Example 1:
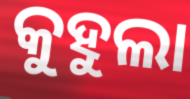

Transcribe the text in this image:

କୁହୁଲା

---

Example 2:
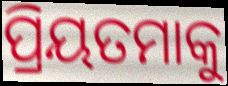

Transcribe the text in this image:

ପ୍ରିୟତମାକୁ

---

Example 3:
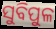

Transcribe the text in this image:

ସୁବିପୁଳ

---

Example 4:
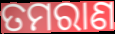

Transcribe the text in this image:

ତମରାଣ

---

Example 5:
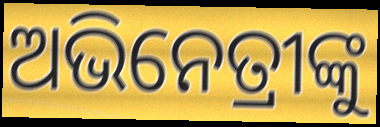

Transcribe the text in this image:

ଅଭିନେତ୍ରୀଙ୍କୁ